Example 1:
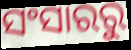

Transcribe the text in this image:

ସଂସାରରୁ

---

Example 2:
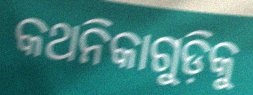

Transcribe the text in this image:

କଥନିକାଗୁଡ଼ିକୁ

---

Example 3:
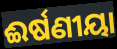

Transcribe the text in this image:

ଈର୍ଷଣୀୟା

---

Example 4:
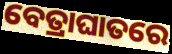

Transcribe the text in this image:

ବେତ୍ରାଘାତରେ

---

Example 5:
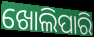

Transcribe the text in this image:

ଖୋଲିପାରି